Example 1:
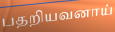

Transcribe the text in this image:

பதறியவனாய்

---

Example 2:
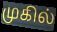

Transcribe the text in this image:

முகில்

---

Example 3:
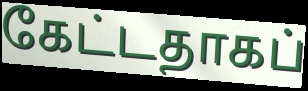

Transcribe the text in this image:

கேட்டதாகப்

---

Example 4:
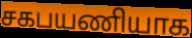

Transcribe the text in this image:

சகபயணியாக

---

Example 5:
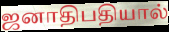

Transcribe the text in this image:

ஜனாதிபதியால்